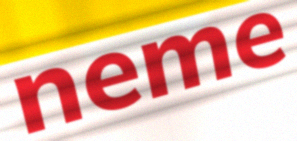
neme